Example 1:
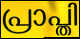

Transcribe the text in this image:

പ്രാപ്തി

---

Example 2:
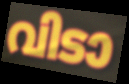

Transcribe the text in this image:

വിടാ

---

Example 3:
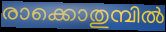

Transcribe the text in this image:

രാക്കൊതുമ്പിൽ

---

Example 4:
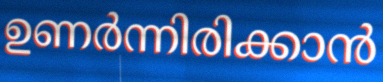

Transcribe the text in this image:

ഉണർന്നിരിക്കാൻ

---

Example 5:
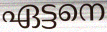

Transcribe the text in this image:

ഏട്ടനെ